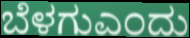
ಬೆಳಗುಎಂದು